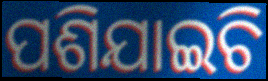
ପଶିଯାଇଚି